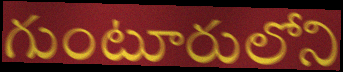
గుంటూరులోని